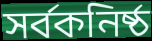
সর্বকনিষ্ঠ